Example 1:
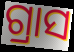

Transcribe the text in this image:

ଗ୍ରାସ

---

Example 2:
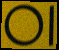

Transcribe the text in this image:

ଠା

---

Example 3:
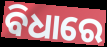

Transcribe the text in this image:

ବିଧାରେ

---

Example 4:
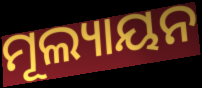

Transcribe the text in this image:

ମୂଲ୍ୟାୟନ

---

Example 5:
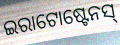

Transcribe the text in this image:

ଇରାଟୋଷ୍ଟେନସ୍